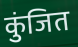
कुंजित